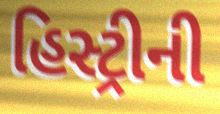
હિસ્ટ્રીની